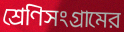
শ্রেণিসংগ্রামের